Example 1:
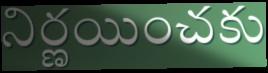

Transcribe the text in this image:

నిర్ణయించకు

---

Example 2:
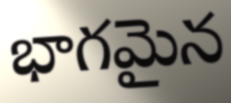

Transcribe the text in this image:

భాగమైన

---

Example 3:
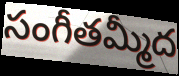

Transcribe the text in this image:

సంగీతమ్మీద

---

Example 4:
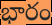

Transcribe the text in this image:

భారం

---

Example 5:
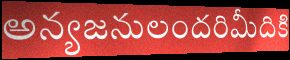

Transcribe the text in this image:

అన్యజనులందరిమీదికి